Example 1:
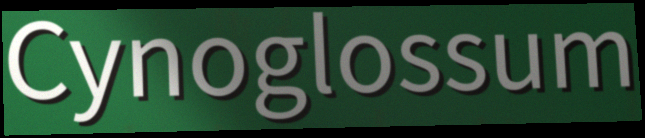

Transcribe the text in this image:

Cynoglossum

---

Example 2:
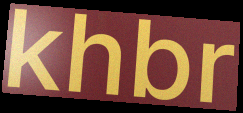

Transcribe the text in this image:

khbr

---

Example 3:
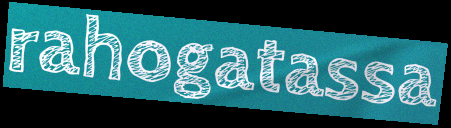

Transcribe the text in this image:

rahogatassa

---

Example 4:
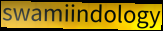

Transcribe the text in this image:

swamiindology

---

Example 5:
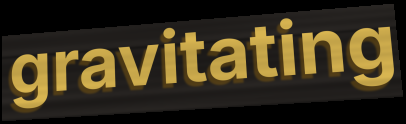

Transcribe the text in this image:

gravitating